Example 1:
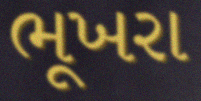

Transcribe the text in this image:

ભૂખરા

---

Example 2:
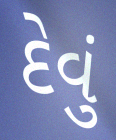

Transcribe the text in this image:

દેવું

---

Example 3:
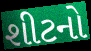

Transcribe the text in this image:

શીટનો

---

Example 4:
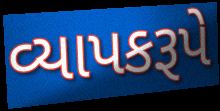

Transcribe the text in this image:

વ્યાપકરૂપે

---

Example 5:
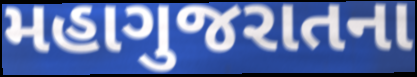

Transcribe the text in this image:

મહાગુજરાતના